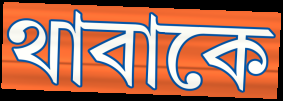
থাবাকে